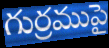
గుర్రముపై